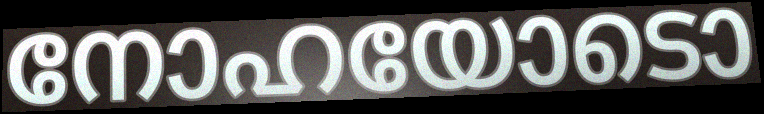
നോഹയോടൊ